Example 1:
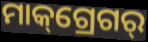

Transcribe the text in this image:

ମାକ୍‌ଗ୍ରେଗର୍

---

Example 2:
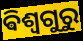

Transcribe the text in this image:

ଵିଶ୍ଵଗୁରୁ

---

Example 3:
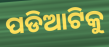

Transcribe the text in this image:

ପଡିଆଟିକୁ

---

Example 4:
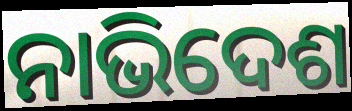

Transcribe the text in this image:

ନାଭିଦେଶ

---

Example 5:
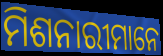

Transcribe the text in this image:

ମିଶନାରୀମାନେ